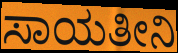
ಸಾಯತೀನಿ